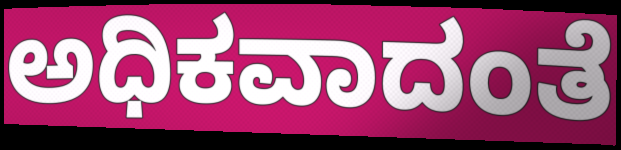
ಅಧಿಕವಾದಂತೆ